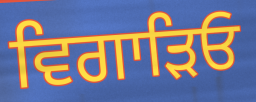
ਵਿਗਾੜਿਓ